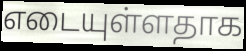
எடையுள்ளதாக